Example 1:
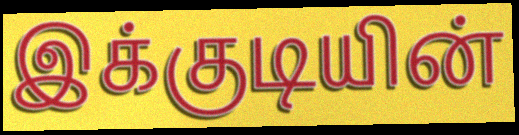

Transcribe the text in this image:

இக்குடியின்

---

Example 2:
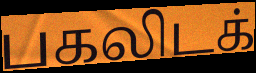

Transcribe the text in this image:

பகலிடக்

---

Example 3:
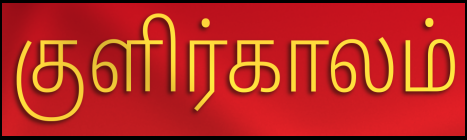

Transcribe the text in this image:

குளிர்காலம்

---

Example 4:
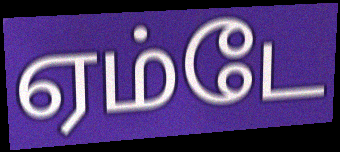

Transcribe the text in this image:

ஏம்டே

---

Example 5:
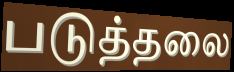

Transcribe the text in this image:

படுத்தலை